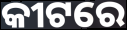
କୀଟରେ